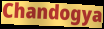
Chandogya